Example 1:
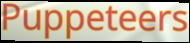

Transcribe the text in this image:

Puppeteers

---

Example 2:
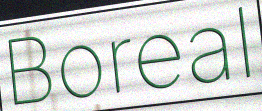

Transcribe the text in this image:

Boreal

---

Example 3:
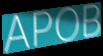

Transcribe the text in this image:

APOB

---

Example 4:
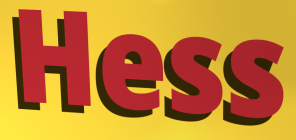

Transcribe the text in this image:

Hess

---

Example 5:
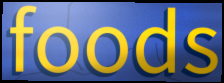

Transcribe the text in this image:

foods